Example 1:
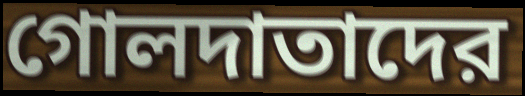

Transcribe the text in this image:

গোলদাতাদের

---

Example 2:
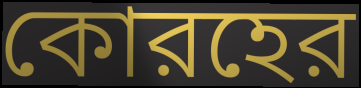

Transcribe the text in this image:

কোরহের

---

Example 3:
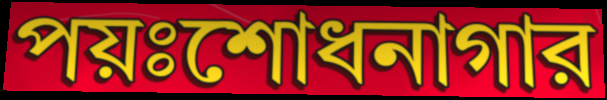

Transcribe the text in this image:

পয়ঃশোধনাগার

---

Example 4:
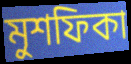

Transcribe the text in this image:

মুশফিকা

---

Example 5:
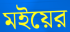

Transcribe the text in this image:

মইয়ের